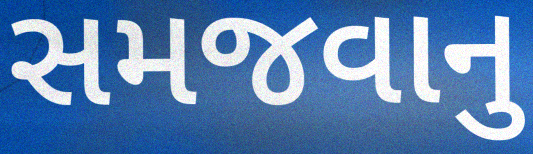
સમજવાનુ